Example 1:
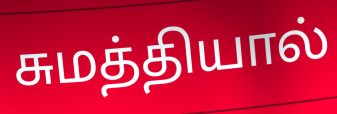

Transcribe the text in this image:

சுமத்தியால்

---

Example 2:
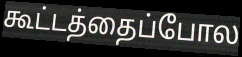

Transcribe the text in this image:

கூட்டத்தைப்போல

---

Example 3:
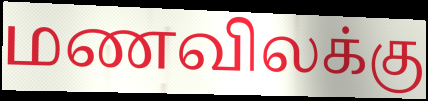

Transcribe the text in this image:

மணவிலக்கு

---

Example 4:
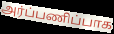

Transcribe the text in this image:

அர்ப்பணிப்பாக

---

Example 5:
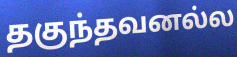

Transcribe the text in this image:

தகுந்தவனல்ல